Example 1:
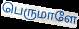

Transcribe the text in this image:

பெருமாளே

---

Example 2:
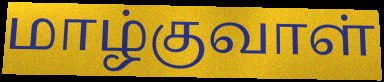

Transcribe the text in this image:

மாழ்குவாள்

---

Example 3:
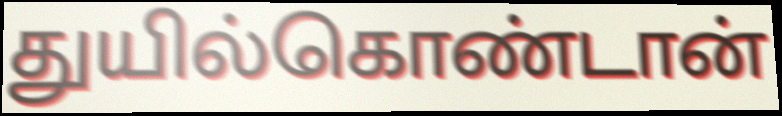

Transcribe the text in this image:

துயில்கொண்டான்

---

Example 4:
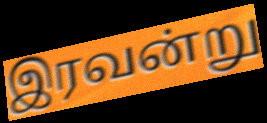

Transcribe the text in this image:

இரவன்று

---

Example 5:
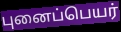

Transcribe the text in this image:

புனைப்பெயர்